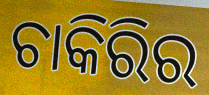
ଚାକିରିର